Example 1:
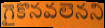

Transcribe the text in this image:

గైకొనవలెనని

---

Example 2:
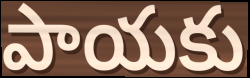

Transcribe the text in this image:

పాయకు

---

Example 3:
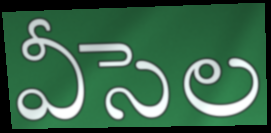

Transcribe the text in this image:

వీసెల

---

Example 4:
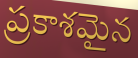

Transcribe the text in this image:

ప్రకాశమైన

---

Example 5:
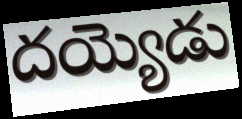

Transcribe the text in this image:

దయ్యెడు